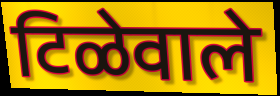
टिळेवाले